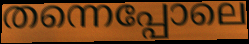
തന്നെപ്പോലെ